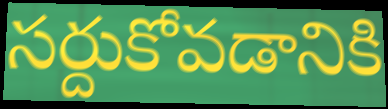
సర్దుకోవడానికి